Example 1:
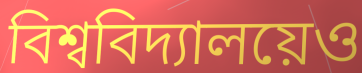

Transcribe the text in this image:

বিশ্ববিদ্যালয়েও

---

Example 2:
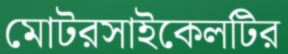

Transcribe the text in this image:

মোটরসাইকেলটির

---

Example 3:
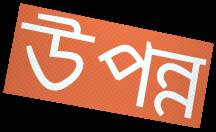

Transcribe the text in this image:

উপন্ন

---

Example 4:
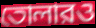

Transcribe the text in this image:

তোলারও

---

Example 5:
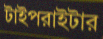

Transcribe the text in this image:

টাইপরাইটার